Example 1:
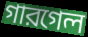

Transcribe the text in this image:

গারগেল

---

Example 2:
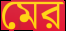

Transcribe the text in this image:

মের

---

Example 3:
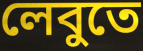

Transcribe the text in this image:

লেবুতে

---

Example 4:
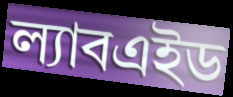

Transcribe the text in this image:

ল্যাবএইড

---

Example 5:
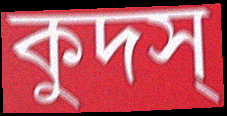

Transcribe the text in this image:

কুদস্